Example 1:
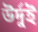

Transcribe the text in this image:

উর্দুই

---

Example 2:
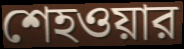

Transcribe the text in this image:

শেহওয়ার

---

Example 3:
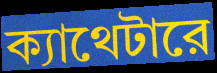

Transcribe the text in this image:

ক্যাথেটারে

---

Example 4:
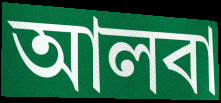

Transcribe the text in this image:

আলবা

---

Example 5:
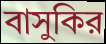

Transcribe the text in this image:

বাসুকির